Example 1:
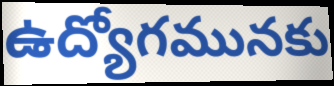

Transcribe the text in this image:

ఉద్యోగమునకు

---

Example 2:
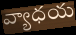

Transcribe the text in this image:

వ్యాధయ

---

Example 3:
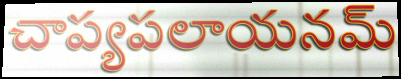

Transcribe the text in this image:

చాప్యపలాయనమ్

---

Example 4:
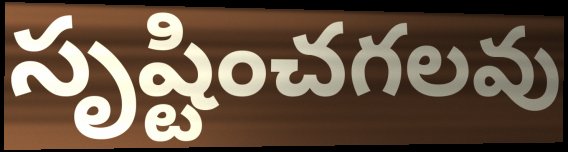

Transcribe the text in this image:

సృష్టించగలవు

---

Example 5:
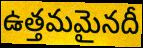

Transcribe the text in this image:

ఉత్తమమైనదీ